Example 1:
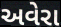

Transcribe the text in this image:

અવેરા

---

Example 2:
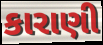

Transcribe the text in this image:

કારાણી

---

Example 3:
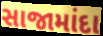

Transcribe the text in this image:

સાજામાંદા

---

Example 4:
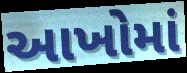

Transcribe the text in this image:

આખોમાં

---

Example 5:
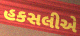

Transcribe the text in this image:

હકસલીએ